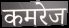
कमरेज